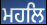
ਮਹਲਿ